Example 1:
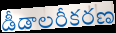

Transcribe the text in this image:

డీడాలరీకరణ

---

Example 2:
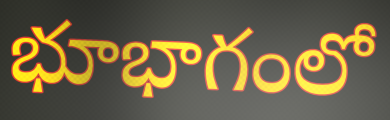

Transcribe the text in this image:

భూభాగంలో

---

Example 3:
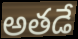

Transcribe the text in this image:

అతడే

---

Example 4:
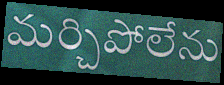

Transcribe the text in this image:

మర్చిపోలేను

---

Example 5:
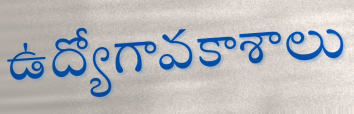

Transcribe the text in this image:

ఉద్యోగావకాశాలు